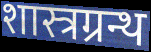
शास्त्रग्रन्थ